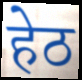
हेठ